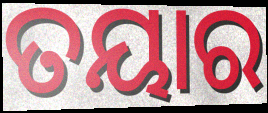
ତୟାର